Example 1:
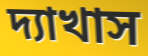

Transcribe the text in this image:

দ্যাখাস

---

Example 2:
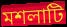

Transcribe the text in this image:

মশলাটি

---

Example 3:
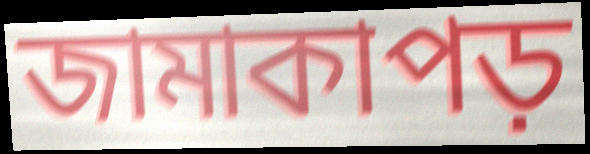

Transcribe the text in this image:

জামাকাপড়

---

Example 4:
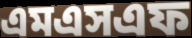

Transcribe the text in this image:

এমএসএফ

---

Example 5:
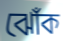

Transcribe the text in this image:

ঝোঁক